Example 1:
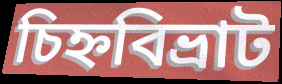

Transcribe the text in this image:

চিহ্নবিভ্রাট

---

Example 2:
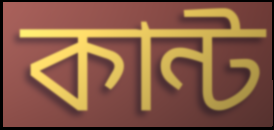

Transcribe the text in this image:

কান্ট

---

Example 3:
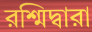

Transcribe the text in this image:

রশ্মিদ্বারা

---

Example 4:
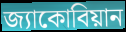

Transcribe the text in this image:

জ্যাকোবিয়ান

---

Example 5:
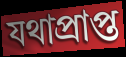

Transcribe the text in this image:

যথাপ্রাপ্ত